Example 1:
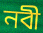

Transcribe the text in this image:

নবী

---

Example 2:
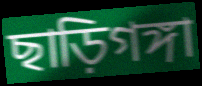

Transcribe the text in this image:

ছাড়িগঙ্গা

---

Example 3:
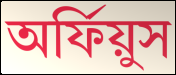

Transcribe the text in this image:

অর্ফিয়ুস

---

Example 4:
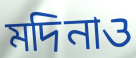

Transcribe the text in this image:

মদিনাও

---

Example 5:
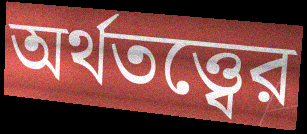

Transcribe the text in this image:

অর্থতত্ত্বের